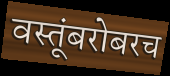
वस्तूंबरोबरच